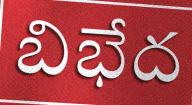
బిభేద